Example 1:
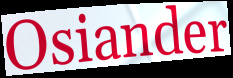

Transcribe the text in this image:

Osiander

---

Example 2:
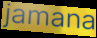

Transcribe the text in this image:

jamana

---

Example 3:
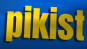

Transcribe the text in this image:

pikist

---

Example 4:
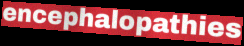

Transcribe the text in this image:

encephalopathies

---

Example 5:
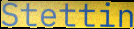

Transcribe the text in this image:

Stettin